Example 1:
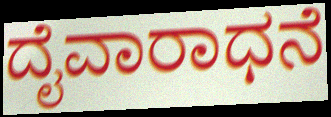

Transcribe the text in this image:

ದೈವಾರಾಧನೆ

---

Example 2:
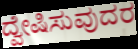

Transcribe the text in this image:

ದ್ವೇಷಿಸುವುದರ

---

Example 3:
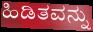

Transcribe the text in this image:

ಹಿಡಿತವನ್ನು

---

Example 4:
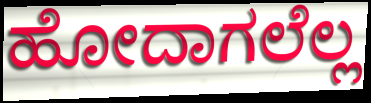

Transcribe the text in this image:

ಹೋದಾಗಲೆಲ್ಲ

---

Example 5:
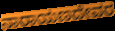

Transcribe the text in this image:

ನಾರಾಯಣದೇವರ